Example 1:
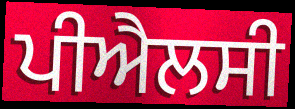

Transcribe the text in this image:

ਪੀਐਲਸੀ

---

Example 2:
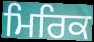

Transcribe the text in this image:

ਮਿਰਿਕ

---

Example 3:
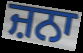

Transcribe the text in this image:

ਜ਼ਨਾ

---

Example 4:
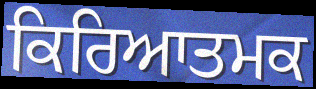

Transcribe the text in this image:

ਕਿਰਿਆਤਮਕ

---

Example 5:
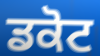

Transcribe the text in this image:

ਡਕੋਟ